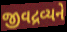
જીવદ્રવ્યને